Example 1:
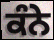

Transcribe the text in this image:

ਕੰਨੇ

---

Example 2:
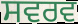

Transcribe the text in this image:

ਸਵਰਵ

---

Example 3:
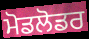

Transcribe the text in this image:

ਮੋਡਲੋਡਰ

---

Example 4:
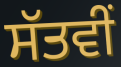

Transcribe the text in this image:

ਸੱਤਵੀਂ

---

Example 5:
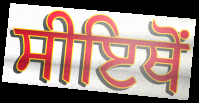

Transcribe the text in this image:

ਸੀਇਥੋਂ